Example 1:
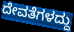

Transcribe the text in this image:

ದೇವತೆಗಳದ್ದು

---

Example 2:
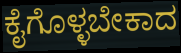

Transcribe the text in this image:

ಕೈಗೊಳ್ಳಬೇಕಾದ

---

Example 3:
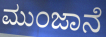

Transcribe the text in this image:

ಮುಂಜಾನೆ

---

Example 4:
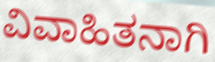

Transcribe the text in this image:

ವಿವಾಹಿತನಾಗಿ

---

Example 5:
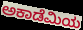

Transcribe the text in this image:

ಅಕಾಡೆಮಿಯ